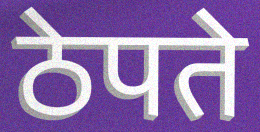
ठेपते